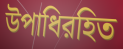
উপাধিরহিত